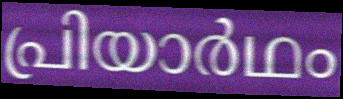
പ്രിയാർഥം